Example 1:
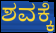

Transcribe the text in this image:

ಶವಕ್ಕೆ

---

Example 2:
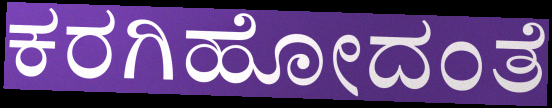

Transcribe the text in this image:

ಕರಗಿಹೋದಂತೆ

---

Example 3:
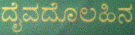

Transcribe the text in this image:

ದೈವದೊಲಹಿನ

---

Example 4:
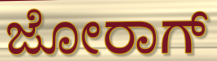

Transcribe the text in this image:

ಜೋರಾಗ್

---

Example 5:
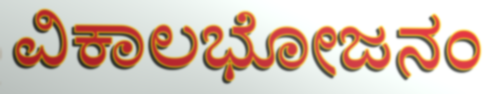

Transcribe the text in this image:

ವಿಕಾಲಭೋಜನಂ